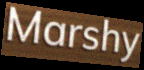
Marshy